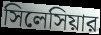
সিলেসিয়ার